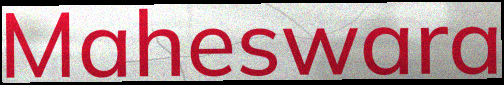
Maheswara